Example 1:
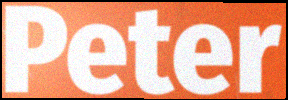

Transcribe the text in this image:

Peter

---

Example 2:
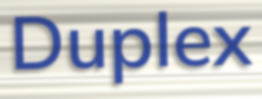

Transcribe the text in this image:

Duplex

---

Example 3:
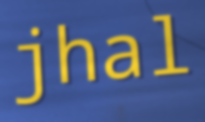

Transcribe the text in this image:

jhal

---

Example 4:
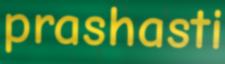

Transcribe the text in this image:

prashasti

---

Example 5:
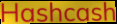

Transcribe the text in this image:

Hashcash